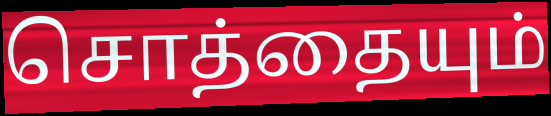
சொத்தையும்